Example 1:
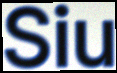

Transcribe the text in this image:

Siu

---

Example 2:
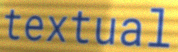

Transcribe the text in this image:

textual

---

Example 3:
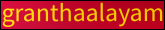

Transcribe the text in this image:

granthaalayam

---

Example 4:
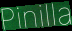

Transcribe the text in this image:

Pinilla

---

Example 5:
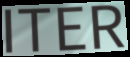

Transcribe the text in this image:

ITER